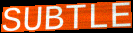
SUBTLE